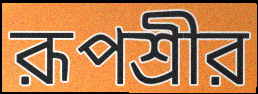
রূপশ্রীর